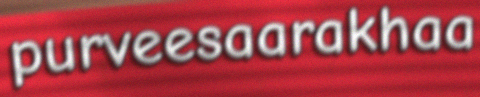
purveesaarakhaa